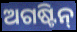
ଅଗଷ୍ଟିନ୍